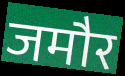
जमौर